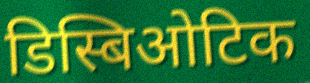
डिस्बिओटिक